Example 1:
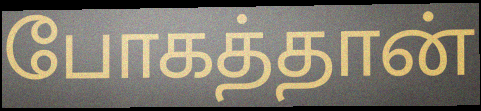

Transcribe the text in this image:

போகத்தான்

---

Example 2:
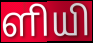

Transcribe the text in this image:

ளியி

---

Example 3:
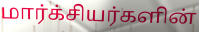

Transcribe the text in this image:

மார்க்சியர்களின்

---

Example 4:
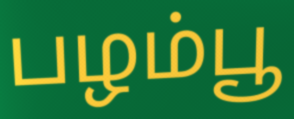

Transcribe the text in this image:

பழம்பூ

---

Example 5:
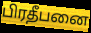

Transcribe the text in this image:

பிரதீபனை